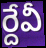
ర్దేవీ